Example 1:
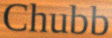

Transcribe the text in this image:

Chubb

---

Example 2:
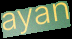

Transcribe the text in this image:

ayan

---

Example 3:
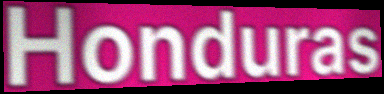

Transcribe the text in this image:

Honduras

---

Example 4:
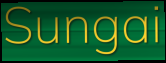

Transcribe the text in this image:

Sungai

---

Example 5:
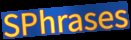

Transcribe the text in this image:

SPhrases